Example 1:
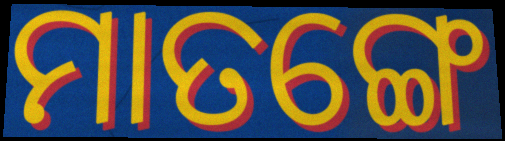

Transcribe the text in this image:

ମାତଙ୍ଗେ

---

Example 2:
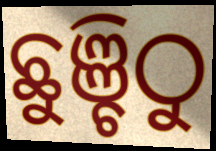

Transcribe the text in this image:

ଛୁଞ୍ଚିଠୁ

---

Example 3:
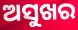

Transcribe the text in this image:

ଅସୁଖର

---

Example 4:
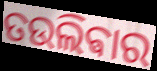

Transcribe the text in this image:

ତଉଲିଵାର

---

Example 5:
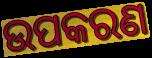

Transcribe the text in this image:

ଉପକରଣ